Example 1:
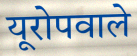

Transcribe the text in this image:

यूरोपवाले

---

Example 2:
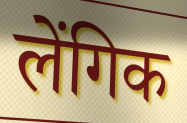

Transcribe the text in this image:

लेंगिक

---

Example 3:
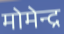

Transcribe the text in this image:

मोमेन्द्र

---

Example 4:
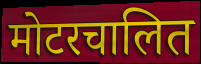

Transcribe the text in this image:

मोटरचालित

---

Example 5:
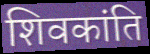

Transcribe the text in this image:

शिवकांति